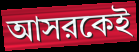
আসরকেই